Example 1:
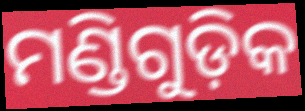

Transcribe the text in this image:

ମଣ୍ଡିଗୁଡ଼ିକ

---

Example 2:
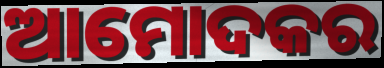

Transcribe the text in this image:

ଆମୋଦକର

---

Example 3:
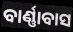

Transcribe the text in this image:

ବାର୍ଣ୍ଣାବାସ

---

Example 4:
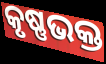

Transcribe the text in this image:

କୃଷ୍ଣଭକ୍ତ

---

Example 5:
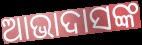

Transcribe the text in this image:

ଆଭାଦାସଙ୍କ